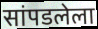
सांपडलेला